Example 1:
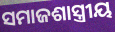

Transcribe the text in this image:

ସମାଜଶାସ୍ତ୍ରୀୟ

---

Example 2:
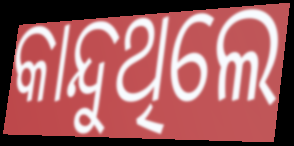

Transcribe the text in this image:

କାନ୍ଦୁଥିଲେ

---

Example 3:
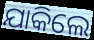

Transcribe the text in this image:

ଯାକିଲେ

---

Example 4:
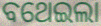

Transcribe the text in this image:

ବଥେଇଲା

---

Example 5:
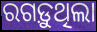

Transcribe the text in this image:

ରଗଡ଼ୁଥିଲା